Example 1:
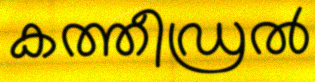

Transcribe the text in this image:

കത്തീഡ്രൽ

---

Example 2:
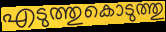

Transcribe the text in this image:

എടുത്തുകൊടുത്തു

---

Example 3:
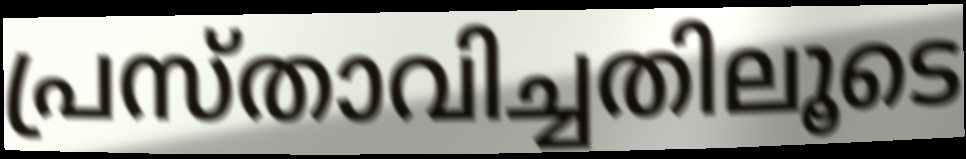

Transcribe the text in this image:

പ്രസ്താവിച്ചതിലൂടെ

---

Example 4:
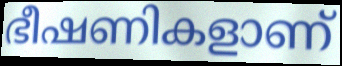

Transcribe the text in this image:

ഭീഷണികളാണ്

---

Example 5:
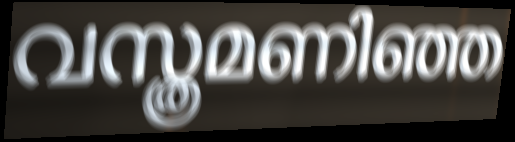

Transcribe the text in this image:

വസ്ത്രമണിഞ്ഞ